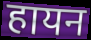
हायन